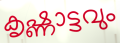
കൃഷ്ണാട്ടവും